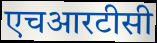
एचआरटीसी